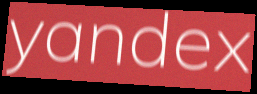
yandex